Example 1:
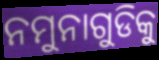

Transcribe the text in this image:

ନମୁନାଗୁଡିକୁ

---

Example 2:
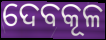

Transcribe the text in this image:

ଦେବକୂଳ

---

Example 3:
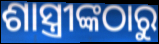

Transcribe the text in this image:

ଶାସ୍ତ୍ରୀଙ୍କଠାରୁ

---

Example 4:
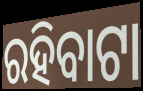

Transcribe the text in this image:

ରହିବାଟା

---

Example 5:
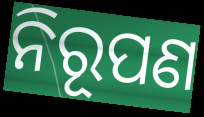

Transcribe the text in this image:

ନିରୂପଣ